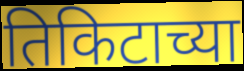
तिकिटाच्या